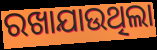
ରଖାଯାଉଥିଲା